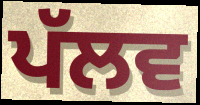
ਪੱਲਵ